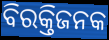
ବିରକ୍ତିଜନକ